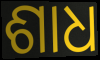
ଶାଧ